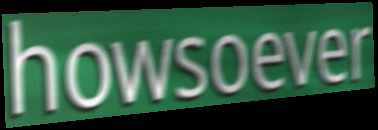
howsoever